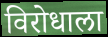
विरोधाला